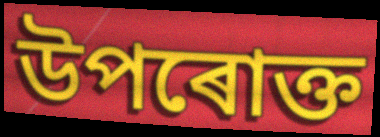
উপৰোক্ত